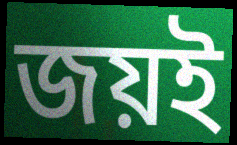
জয়ই